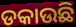
ଡକାଉଛି